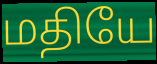
மதியே